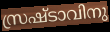
സ്രഷ്ടാവിനു